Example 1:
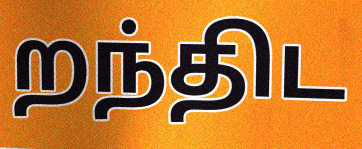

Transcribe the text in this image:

றந்திட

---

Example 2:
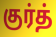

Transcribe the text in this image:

குர்த்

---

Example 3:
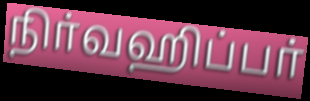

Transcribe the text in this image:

நிர்வஹிப்பர்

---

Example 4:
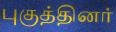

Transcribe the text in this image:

புகுத்தினர்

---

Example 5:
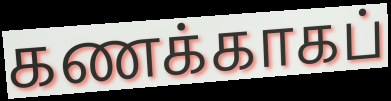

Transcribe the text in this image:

கணக்காகப்